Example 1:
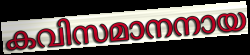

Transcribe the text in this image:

കവിസമാനനായ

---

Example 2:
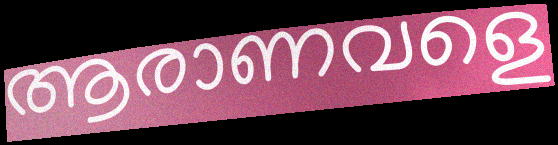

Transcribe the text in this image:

ആരാണവളെ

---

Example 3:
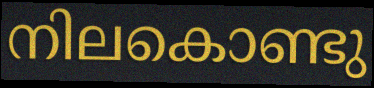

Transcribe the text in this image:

നിലകൊണ്ടു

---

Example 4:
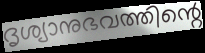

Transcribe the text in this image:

ദൃശ്യാനുഭവത്തിന്റെ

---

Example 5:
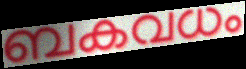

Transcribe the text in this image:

ബകവധം